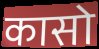
कासो